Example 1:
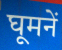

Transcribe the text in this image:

घूमनें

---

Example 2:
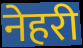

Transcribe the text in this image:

नेहरी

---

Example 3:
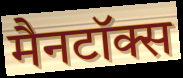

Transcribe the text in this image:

मैनटॉक्स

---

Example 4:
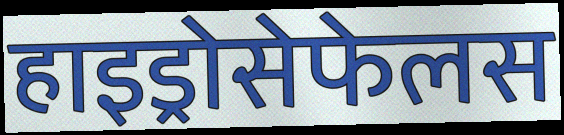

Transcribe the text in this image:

हाइड्रोसेफेलस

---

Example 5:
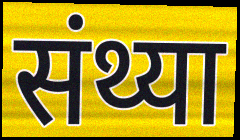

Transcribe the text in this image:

संथ्या